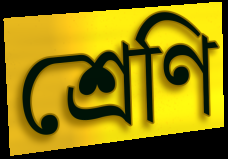
শ্রেণি